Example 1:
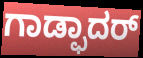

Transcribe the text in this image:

ಗಾಡ್ಫಾದರ್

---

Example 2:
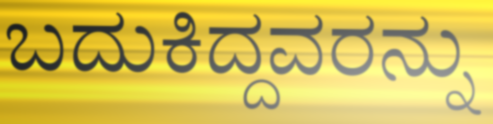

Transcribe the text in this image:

ಬದುಕಿದ್ದವರನ್ನು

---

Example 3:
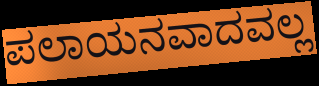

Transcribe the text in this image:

ಪಲಾಯನವಾದವಲ್ಲ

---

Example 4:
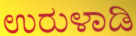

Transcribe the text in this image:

ಉರುಳಾಡಿ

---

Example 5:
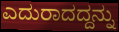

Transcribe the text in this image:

ಎದುರಾದದ್ದನ್ನು